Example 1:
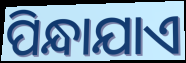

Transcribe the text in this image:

ପିନ୍ଧାଯାଏ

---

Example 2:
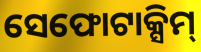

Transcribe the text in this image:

ସେଫୋଟାକ୍ସିମ୍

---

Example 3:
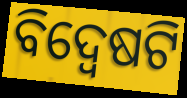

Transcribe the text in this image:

ବିଦ୍ୱେଷଟି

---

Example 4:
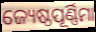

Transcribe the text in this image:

ଜ୍ୟେଷ୍ଠପୂର୍ଣ୍ଣିମା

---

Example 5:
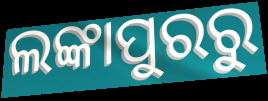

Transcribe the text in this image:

ଲଙ୍କାପୁରରୁ